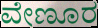
ವೇಣೂರ